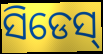
ସିଡେସ୍